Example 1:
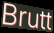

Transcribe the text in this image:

Brutt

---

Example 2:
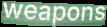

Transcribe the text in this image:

weapons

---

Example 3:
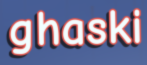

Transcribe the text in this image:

ghaski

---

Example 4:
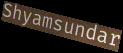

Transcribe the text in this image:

Shyamsundar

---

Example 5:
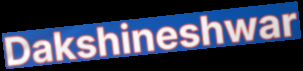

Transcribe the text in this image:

Dakshineshwar